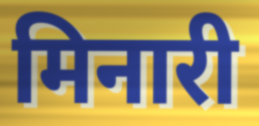
मिनारी